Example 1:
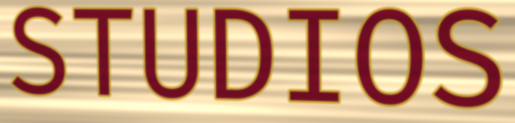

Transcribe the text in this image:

STUDIOS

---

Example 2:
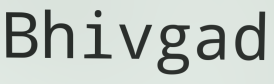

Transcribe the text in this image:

Bhivgad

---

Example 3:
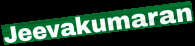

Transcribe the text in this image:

Jeevakumaran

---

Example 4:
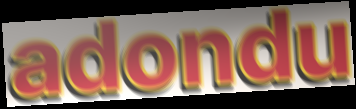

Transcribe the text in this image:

adondu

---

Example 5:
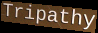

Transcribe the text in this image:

Tripathy